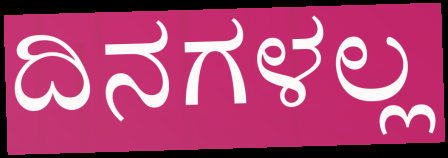
ದಿನಗಳಲ್ಲ